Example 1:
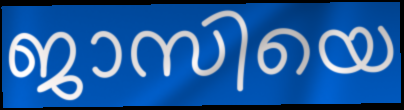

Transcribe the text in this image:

ജാസിയെ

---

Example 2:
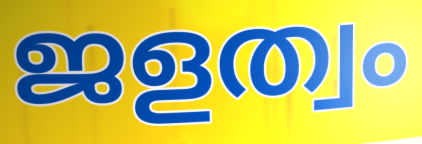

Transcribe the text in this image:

ജളത്വം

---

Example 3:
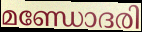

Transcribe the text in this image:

മണ്ഡോദരി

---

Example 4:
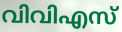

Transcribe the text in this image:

വിവിഎസ്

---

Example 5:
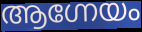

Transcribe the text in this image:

ആഗ്നേയം